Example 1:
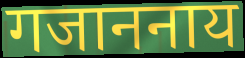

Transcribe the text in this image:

गजाननाय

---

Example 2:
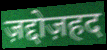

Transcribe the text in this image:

ज़द्दोज़हद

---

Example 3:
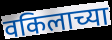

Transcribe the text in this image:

वकिलाच्या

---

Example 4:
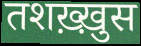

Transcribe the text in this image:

तशख़्ख़ुस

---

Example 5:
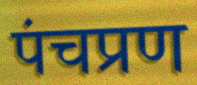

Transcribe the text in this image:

पंचप्रण